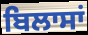
ਬਿਲਾਸਾਂ